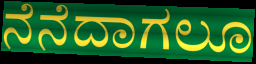
ನೆನೆದಾಗಲೂ